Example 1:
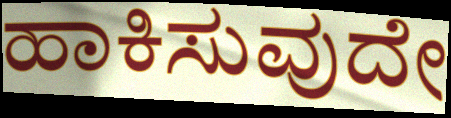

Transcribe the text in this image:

ಹಾಕಿಸುವುದೇ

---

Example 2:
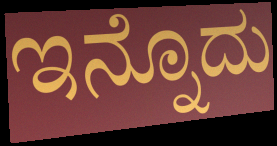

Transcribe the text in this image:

ಇನ್ನೊದು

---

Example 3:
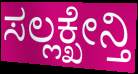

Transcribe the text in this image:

ಸಲ್ಲಕ್ಖೇನ್ತಿ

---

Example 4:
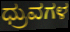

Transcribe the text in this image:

ಧ್ರುವಗಳ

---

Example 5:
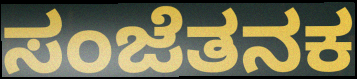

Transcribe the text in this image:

ಸಂಜೆತನಕ